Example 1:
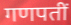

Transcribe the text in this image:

गणपतीं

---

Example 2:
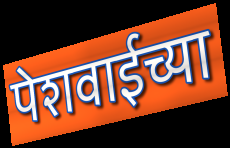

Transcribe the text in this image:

पेशवाईच्या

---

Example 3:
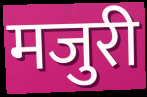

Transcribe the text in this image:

मजुरी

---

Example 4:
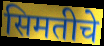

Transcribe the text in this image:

सिमतीचे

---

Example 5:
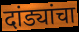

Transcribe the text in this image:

दांड्यांचा